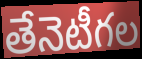
తేనెటీగల